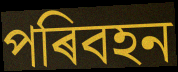
পৰিবহন